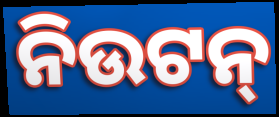
ନିଉଟନ୍